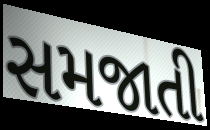
સમજાતી